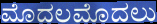
ಮೊದಲಮೊದಲು